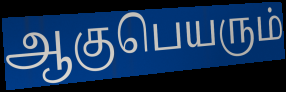
ஆகுபெயரும்